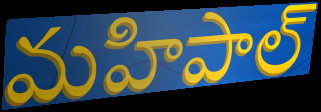
మహిపాల్